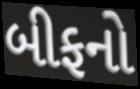
બીફનો